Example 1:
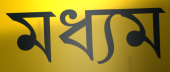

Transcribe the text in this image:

মধ্যম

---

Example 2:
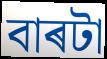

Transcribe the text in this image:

বাৰটা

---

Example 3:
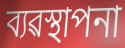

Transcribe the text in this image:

ব্যৱস্থাপনা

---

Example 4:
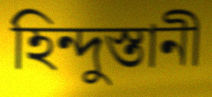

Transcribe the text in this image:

হিন্দুস্তানী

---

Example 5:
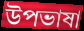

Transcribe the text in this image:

উপভাষা